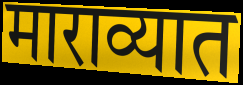
माराव्यात